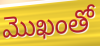
మొఖంతో